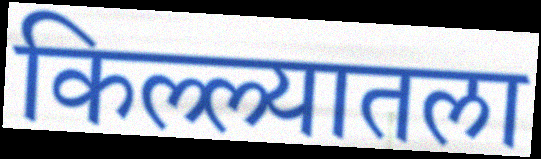
किल्ल्यातला